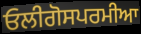
ਓਲੀਗੋਸਪਰਮੀਆ